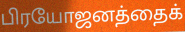
பிரயோஜனத்தைக்